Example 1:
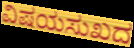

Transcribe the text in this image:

ವಿಷಯಸುಖದ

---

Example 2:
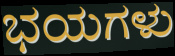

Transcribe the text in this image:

ಭಯಗಳು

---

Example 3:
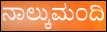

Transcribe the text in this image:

ನಾಲ್ಕುಮಂದಿ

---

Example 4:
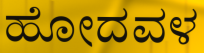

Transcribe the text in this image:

ಹೋದವಳ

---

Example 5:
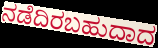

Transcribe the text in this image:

ನಡೆದಿರಬಹುದಾದ